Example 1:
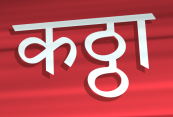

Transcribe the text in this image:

कठ्ठा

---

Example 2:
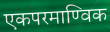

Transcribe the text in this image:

एकपरमाण्विक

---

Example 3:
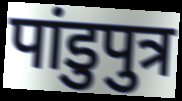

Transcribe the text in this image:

पांडुपुत्र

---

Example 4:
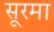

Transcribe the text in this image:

सूरमा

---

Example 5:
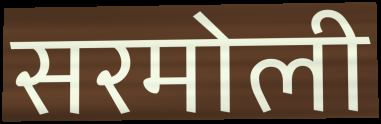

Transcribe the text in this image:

सरमोली